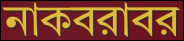
নাকবরাবর